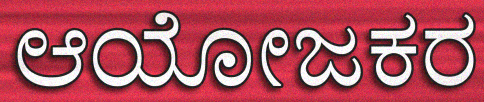
ಆಯೋಜಕರ